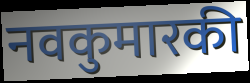
नवकुमारकी